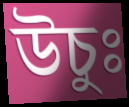
উচুঃ